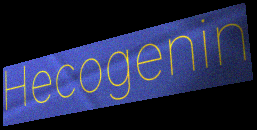
Hecogenin